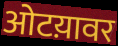
ओटय़ावर